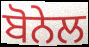
ਬੋਨੇਲ